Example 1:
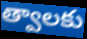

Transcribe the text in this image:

త్వాలకు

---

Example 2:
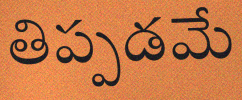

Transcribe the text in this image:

తిప్పడమే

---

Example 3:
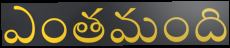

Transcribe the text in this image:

ఎంతమంది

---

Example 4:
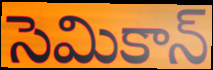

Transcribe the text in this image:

సెమికాన్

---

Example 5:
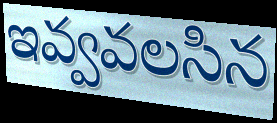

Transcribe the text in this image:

ఇవ్వవలసిన